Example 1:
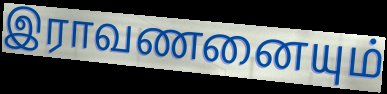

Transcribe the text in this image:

இராவணனையும்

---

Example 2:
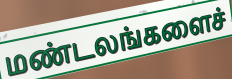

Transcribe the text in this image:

மண்டலங்களைச்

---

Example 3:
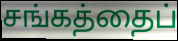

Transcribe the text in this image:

சங்கத்தைப்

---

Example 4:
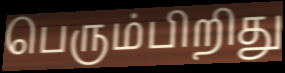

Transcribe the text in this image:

பெரும்பிறிது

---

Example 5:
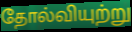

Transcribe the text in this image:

தோல்வியுற்று